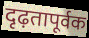
दृढ़तापूर्वक